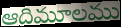
ఆదిమూలము